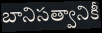
బానిసత్వానికీ